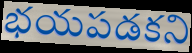
భయపడకని